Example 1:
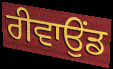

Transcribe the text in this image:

ਰੀਵਾਉਂਡ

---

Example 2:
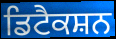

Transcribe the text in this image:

ਡਿਟੈਕਸ਼ਨ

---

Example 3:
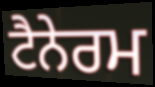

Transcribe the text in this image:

ਟੈਨੇਰਮ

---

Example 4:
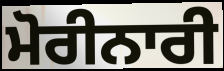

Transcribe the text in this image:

ਮੋਰੀਨਾਰੀ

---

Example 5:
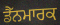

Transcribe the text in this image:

ਡੈੱਨਮਾਰਕ